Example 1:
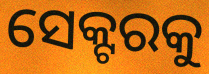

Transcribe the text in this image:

ସେକ୍ଟରକୁ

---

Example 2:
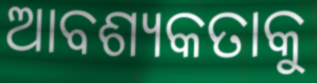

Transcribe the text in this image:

ଆବଶ୍ୟକତାକୁ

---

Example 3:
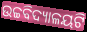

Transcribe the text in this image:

ଉଚ୍ଚବିଦ୍ୟାଳୟଟି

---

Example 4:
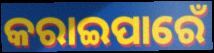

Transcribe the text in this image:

କରାଇପାରେଁ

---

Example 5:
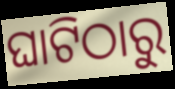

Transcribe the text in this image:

ଘାଟିଠାରୁ